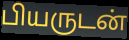
பியருடன்